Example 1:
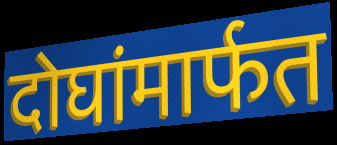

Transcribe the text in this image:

दोघांमार्फत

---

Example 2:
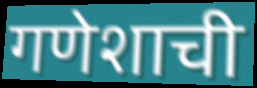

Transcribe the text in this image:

गणेशाची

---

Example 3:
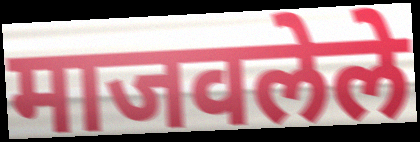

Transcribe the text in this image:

माजवलेले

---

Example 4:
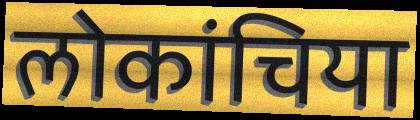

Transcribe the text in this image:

लोकांचिया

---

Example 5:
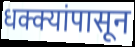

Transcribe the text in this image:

धक्क्यांपासून